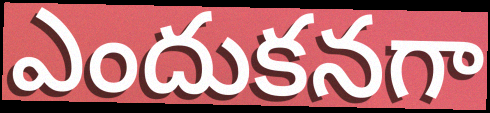
ఎందుకనగా